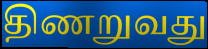
திணறுவது